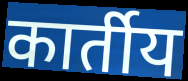
कार्तीय